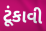
ટૂંકાવી